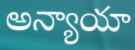
అన్యాయా